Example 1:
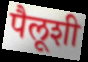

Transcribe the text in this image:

पैलूशी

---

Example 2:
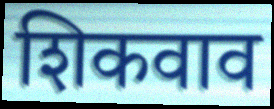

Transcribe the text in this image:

शिकवाव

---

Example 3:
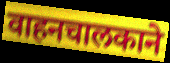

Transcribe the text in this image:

वाहनचालकाने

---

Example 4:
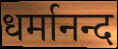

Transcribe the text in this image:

धर्मानन्द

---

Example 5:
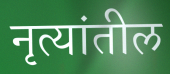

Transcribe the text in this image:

नृत्यांतील